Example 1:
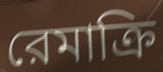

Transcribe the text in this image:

রেমাক্রি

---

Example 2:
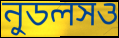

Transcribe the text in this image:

নুডলসও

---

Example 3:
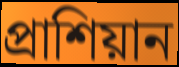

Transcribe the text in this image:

প্রাশিয়ান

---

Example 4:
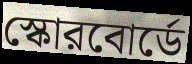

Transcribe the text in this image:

স্কোরবোর্ডে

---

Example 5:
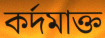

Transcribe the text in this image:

কর্দমাক্ত